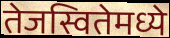
तेजस्वितेमध्ये